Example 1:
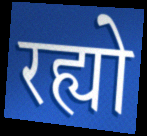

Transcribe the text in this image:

रह्यो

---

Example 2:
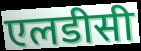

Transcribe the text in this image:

एलडीसी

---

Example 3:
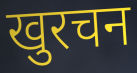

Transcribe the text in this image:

खुरचन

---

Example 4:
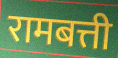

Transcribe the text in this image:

रामबत्ती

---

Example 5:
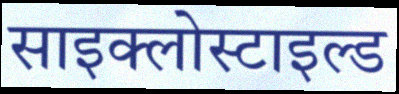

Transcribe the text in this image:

साइक्लोस्टाइल्ड